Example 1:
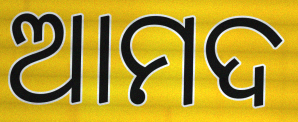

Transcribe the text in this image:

ଆମଦ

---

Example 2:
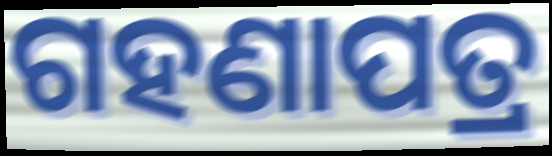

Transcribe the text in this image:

ଗହଣାପତ୍ର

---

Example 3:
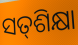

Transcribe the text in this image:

ସତ୍‌ଶିକ୍ଷା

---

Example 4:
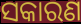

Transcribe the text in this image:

ସକାରଣ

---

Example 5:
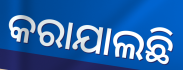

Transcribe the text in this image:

କରାଯାଲଛି